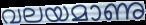
വലയമാണു